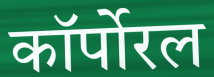
कॉर्पोरल